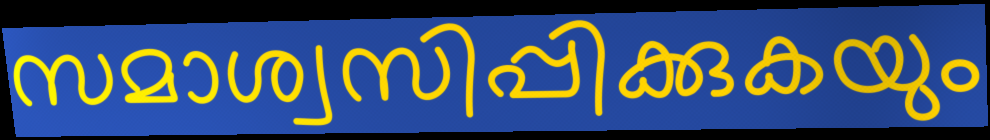
സമാശ്വസിപ്പിക്കുകയും